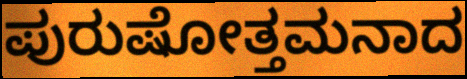
ಪುರುಷೋತ್ತಮನಾದ